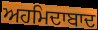
ਅਹਮਿਦਾਬਾਦ